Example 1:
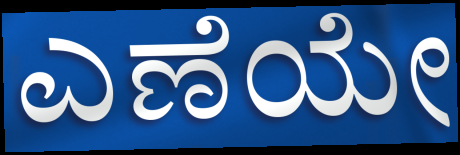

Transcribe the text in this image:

ಎಣೆಯೇ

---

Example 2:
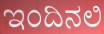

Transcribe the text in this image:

ಇಂದಿನಲಿ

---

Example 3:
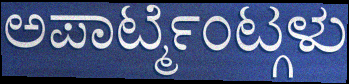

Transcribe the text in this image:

ಅಪಾರ್ಟ್ಮೆಂಟ್ಗಳು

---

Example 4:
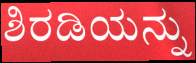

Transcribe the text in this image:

ಶಿರಡಿಯನ್ನು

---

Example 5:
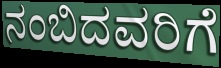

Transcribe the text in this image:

ನಂಬಿದವರಿಗೆ